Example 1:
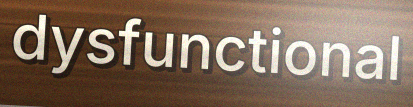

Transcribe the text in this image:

dysfunctional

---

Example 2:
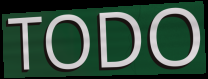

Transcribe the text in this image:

TODO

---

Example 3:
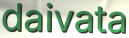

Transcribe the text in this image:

daivata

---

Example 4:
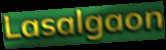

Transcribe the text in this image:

Lasalgaon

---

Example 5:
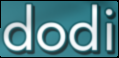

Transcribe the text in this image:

dodi